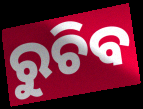
ରୁଚିବ